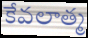
కేవలాత్మ